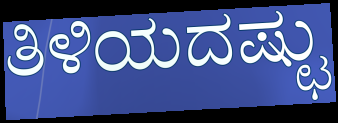
ತಿಳಿಯದಷ್ಟು